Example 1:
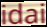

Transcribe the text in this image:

idai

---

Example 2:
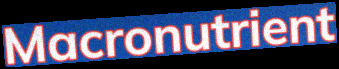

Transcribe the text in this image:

Macronutrient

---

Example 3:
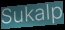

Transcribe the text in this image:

Sukalp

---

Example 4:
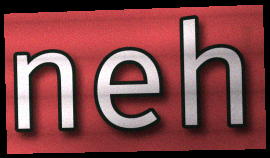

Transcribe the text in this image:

neh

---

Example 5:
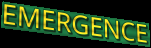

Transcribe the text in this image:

EMERGENCE